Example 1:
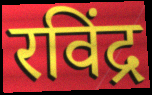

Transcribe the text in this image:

रविंद्र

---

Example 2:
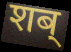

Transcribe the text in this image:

शब्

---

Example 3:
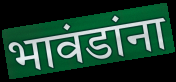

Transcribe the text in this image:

भावंडांना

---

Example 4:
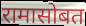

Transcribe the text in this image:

रामासोबत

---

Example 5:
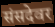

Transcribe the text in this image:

संसदेवर